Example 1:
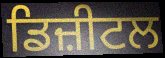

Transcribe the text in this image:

ਡਿਜ਼ੀਟਲ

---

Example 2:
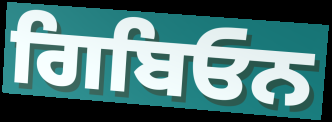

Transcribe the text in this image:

ਗਿਬਿਓਨ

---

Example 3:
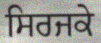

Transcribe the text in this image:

ਸਿਰਜਕੇ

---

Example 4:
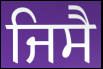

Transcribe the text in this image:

ਜਿਸੈ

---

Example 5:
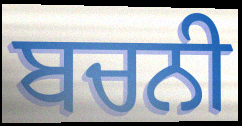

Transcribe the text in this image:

ਬਚਨੀ